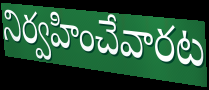
నిర్వహించేవారట